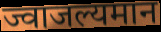
ज्वाजल्यमान